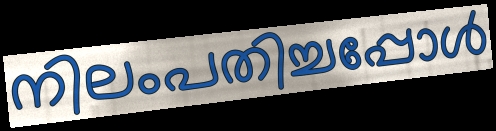
നിലംപതിച്ചപ്പോൾ